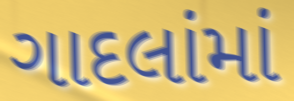
ગાદલાંમાં